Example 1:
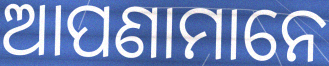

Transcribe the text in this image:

ଆପଣାମାନେ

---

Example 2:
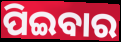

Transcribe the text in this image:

ପିଇବାର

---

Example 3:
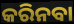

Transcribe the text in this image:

କରିନବା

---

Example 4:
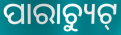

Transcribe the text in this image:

ପାରାଚ୍ୟୁଟ୍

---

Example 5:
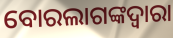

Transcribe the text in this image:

ବୋରଲାଗଙ୍କଦ୍ୱାରା